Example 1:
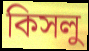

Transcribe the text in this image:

কিসলু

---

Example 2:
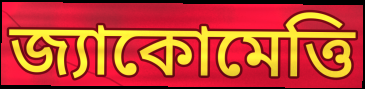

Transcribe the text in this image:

জ্যাকোমেত্তি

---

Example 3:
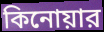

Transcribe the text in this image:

কিনোয়ার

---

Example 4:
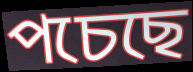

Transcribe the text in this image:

পচেছে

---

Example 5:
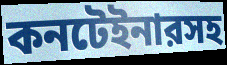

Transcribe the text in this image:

কনটেইনারসহ